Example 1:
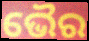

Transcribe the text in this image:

ଭୈର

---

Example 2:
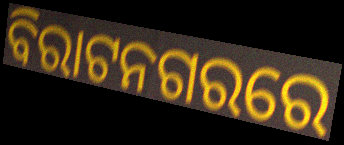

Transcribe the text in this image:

ବିରାଟନଗରରେ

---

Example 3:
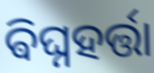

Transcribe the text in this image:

ଵିଘ୍ନହର୍ତ୍ତା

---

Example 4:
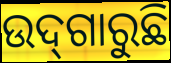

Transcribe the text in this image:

ଉଦ୍‌ଗାରୁଛି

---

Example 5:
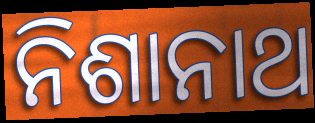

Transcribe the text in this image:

ନିଶାନାଥ